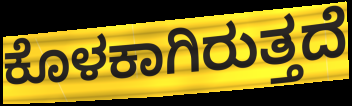
ಕೊಳಕಾಗಿರುತ್ತದೆ